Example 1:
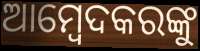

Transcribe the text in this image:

ଆମ୍ବେଦକରଙ୍କୁ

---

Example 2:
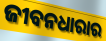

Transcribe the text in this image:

ଜୀବନଧାରାର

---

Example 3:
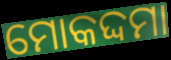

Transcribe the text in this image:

ମୋକଦ୍ଦମା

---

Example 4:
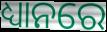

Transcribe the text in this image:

ଧ୍ୟାନରେ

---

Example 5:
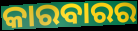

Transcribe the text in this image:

କାରବାରର